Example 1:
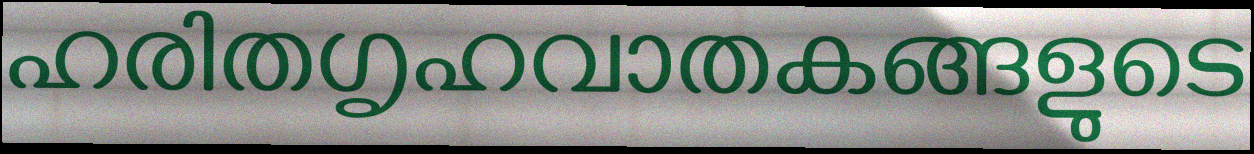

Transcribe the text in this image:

ഹരിതഗൃഹവാതകങ്ങളുടെ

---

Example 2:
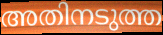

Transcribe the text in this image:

അതിനടുത്ത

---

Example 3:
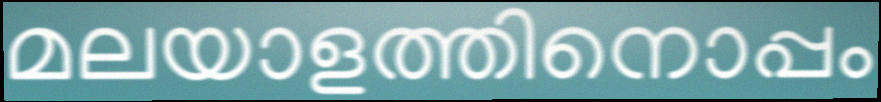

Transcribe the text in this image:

മലയാളത്തിനൊപ്പം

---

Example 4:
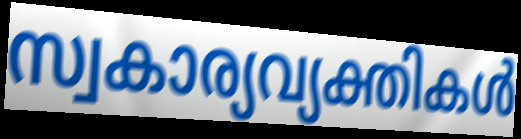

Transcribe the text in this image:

സ്വകാര്യവ്യക്തികൾ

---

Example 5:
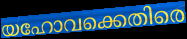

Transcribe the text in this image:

യഹോവക്കെതിരെ